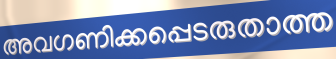
അവഗണിക്കപ്പെടരുതാത്ത